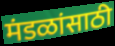
मंडळांसाठी